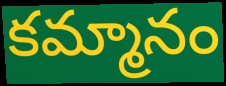
కమ్మానం